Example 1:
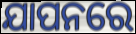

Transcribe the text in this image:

ଯାପନରେ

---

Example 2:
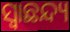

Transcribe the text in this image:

ସ୍ୱାଛନ୍ଦ୍ୟ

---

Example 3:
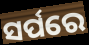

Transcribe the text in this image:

ସର୍ପରେ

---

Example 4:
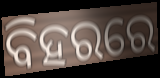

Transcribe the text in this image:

ବିହରରେ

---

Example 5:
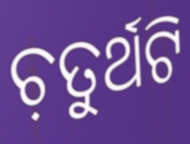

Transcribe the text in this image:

ଚ଼ତୁର୍ଥଟି